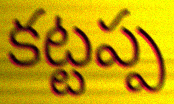
కట్టప్ప